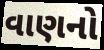
વાણનો